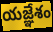
యజ్ఞేశం